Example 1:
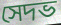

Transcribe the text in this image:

সেদভ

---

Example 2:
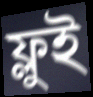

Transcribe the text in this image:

ফ্লুই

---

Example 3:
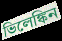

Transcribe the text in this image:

ভিলেঙ্কিন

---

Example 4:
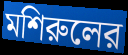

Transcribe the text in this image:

মশিরুলের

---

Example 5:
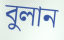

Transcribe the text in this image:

বুলান